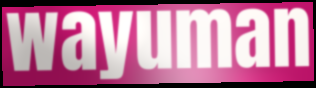
wayuman